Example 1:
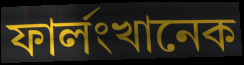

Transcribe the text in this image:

ফার্লংখানেক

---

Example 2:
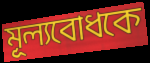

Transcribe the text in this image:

মূল্যবোধকে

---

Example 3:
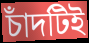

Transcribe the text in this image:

চাঁদটিই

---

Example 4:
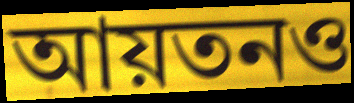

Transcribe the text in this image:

আয়তনও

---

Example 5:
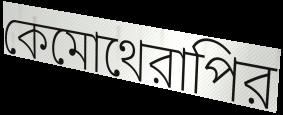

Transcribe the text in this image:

কেমোথেরাপির